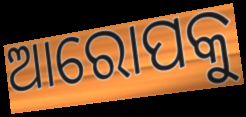
ଆରୋପକୁ